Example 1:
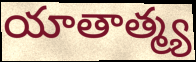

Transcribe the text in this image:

యాతాత్మ్య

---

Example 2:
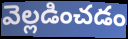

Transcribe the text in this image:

వెల్లడించడం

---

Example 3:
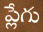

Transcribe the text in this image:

ప్లేగు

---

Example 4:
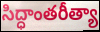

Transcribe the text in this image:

సిద్ధాంతరీత్యా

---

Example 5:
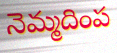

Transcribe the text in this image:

నెమ్మదింప